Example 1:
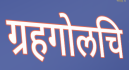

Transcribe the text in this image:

ग्रहगोलचि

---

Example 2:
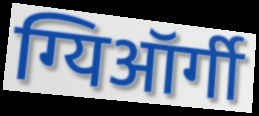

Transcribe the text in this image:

ग्यिऑर्गी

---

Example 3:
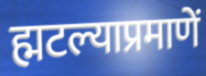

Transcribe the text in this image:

ह्मटल्याप्रमाणें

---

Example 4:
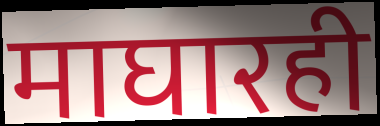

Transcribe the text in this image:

माघारही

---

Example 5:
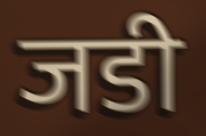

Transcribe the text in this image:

जडी